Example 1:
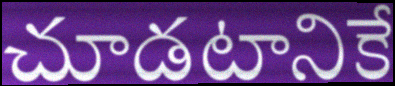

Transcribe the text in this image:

చూడటానికే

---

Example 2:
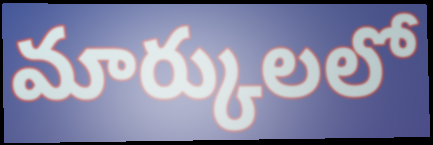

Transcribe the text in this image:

మార్కులలో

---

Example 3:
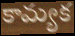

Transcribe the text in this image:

కామ్యక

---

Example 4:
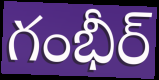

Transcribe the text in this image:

గంభీర్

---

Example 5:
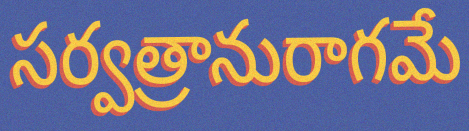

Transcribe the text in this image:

సర్వత్రానురాగమే